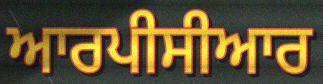
ਆਰਪੀਸੀਆਰ